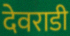
देवराडी